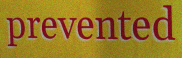
prevented